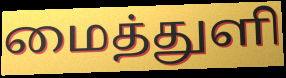
மைத்துளி